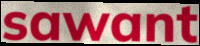
sawant